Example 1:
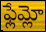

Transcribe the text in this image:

ఫ్లేమ్లో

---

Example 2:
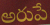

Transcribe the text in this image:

అరుపే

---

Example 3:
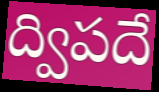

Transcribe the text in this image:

ద్విపదే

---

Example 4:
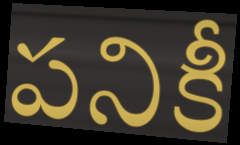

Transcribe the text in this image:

పనికీ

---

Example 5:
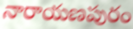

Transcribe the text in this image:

నారాయణపురం